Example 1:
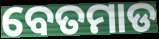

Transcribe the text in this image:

ବେତମାଡ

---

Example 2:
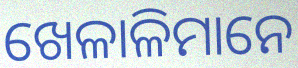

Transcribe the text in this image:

ଖେଳାଳିମାନେ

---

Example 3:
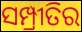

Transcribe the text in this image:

ସମ୍ପ୍ରୀତିର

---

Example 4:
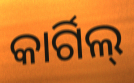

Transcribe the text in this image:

କାର୍ଗିଲ୍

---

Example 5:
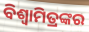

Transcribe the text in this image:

ବିଶ୍ୱାମିତ୍ରଙ୍କର